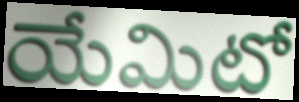
యేమిటో